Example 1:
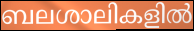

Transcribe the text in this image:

ബലശാലികളിൽ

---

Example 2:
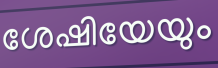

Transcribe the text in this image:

ശേഷിയേയും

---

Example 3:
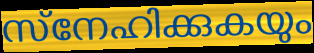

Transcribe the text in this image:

സ്‌നേഹിക്കുകയും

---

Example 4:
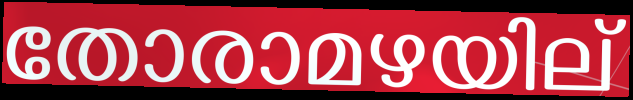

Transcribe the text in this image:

തോരാമഴയില്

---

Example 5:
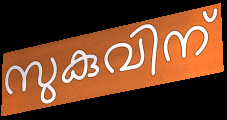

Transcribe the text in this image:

സുകുവിന്